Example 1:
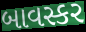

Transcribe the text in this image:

બાવસ્કર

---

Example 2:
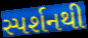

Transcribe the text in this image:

સ્પર્શનથી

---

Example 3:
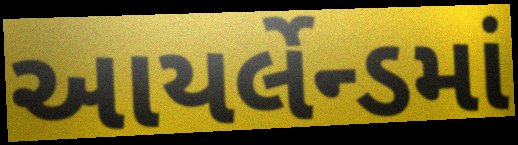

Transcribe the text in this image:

આયર્લેન્ડમાં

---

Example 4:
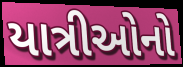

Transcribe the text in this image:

યાત્રીઓનો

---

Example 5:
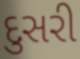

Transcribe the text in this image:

દુસરી